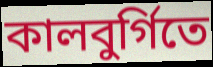
কালবুর্গিতে